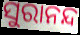
ସୁରାନନ୍ଦ